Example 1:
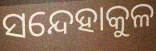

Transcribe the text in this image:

ସନ୍ଦେହାକୁଳ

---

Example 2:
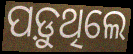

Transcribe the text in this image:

ପଡ଼ୁଥିଲେ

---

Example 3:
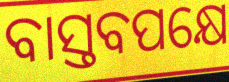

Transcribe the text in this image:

ବାସ୍ତବପକ୍ଷେ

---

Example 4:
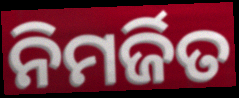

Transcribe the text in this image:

ନିମର୍ଜିତ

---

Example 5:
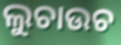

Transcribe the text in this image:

ଲୁଚାଉଚ